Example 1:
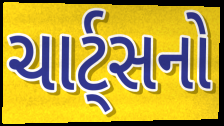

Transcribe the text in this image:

ચાર્ટ્સનો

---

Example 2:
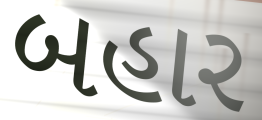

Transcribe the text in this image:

બહાર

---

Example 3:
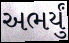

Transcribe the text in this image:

અભર્યું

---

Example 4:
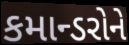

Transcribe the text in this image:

કમાન્ડરોને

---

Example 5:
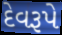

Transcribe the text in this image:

દેવરૂપે